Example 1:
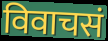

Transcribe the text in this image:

विवाचसं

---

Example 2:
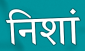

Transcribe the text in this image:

निशां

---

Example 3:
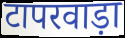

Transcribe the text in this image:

टापरवाड़ा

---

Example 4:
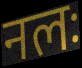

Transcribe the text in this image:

नलः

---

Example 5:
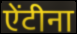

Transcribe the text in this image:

ऐंटीना